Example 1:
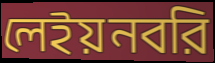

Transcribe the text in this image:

লেইয়নবরি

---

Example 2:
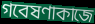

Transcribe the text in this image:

গবেষণাকাজে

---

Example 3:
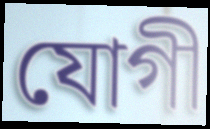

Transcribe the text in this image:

যোগী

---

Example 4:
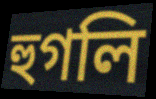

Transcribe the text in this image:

হুগলি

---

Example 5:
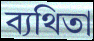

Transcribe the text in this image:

ব্যথিতা